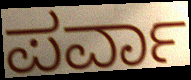
ಪರ್ವಾ